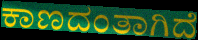
ಕಾಣದಂತಾಗಿದೆ